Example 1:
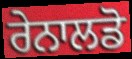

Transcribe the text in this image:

ਰੇਨਾਲਡੋ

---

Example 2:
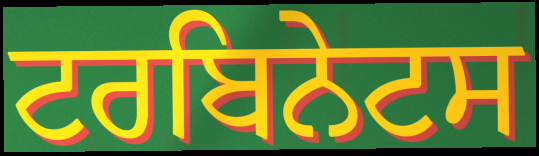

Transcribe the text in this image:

ਟਰਬਿਨੇਟਸ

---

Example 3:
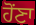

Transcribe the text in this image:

ਹੋਂਣਾ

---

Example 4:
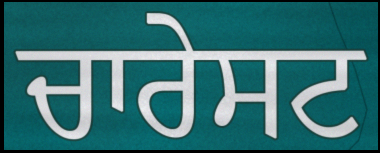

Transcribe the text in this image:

ਚਾਰੇਸਟ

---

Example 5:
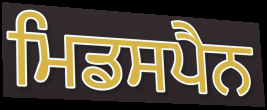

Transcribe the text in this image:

ਮਿਡਸਪੈਨ